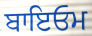
ਬਾਇਓਮ